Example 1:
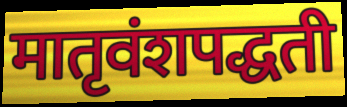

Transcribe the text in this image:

मातृवंशपद्धती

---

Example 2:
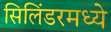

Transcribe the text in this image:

सिलिंडरमध्ये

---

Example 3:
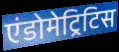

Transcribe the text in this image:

एंडोमेट्रिटिस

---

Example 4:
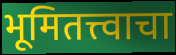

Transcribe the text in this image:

भूमितत्त्वाचा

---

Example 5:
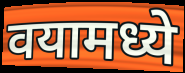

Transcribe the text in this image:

वयामध्ये